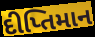
દીપ્તિમાન